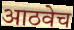
आठवेच